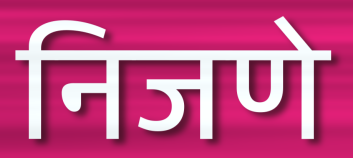
निजणे